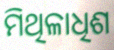
ମିଥିଳାଧିଶ